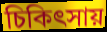
চিকিৎসায়